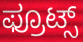
ಫ್ರೂಟ್ಸ್